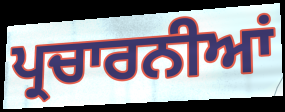
ਪ੍ਰਚਾਰਨੀਆਂ